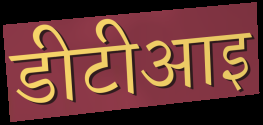
डीटीआइ